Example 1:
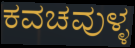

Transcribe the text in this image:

ಕವಚವುಳ್ಳ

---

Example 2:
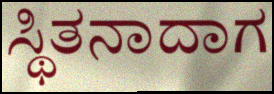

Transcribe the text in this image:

ಸ್ಥಿತನಾದಾಗ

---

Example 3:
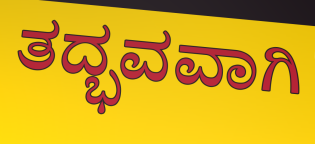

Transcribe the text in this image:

ತದ್ಭವವಾಗಿ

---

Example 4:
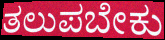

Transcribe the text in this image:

ತಲುಪಬೇಕು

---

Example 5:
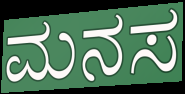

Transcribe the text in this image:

ಮನಸ